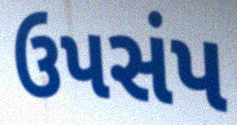
ઉપસંપ